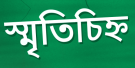
স্মৃতিচিহ্ন